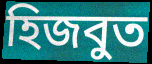
হিজবুত